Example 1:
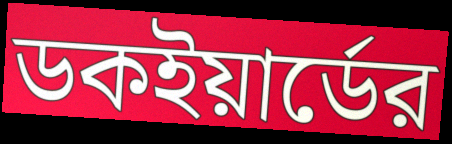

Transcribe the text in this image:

ডকইয়ার্ডের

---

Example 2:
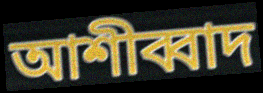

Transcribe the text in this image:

আশীব্বাদ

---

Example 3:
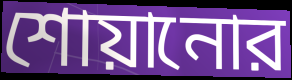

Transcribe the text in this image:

শোয়ানোর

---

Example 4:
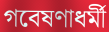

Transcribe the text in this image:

গবেষণাধর্মী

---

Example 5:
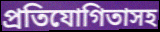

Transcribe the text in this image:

প্রতিযোগিতাসহ